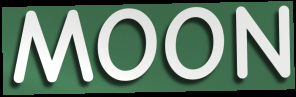
MOON